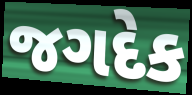
જગદેક